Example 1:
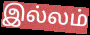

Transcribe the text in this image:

இல்லம்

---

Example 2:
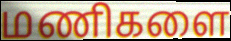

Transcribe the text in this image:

மணிகளை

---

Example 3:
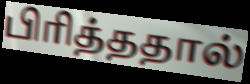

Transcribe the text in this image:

பிரித்ததால்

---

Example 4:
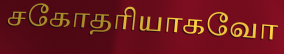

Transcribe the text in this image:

சகோதரியாகவோ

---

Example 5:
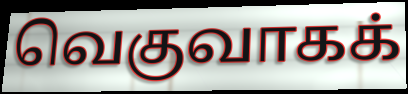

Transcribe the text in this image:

வெகுவாகக்